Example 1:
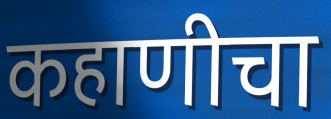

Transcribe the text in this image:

कहाणीचा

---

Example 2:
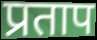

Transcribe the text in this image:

प्रताप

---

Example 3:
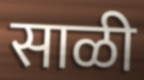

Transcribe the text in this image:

साळी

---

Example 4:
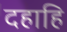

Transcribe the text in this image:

दहाहि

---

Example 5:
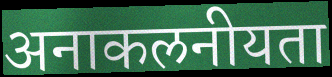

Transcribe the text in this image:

अनाकलनीयता